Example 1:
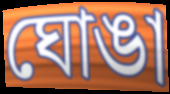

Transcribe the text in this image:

ঘোঙা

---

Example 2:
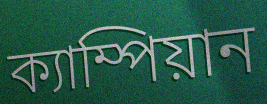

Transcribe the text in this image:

ক্যাম্পিয়ান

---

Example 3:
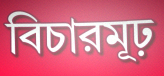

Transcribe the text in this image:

বিচারমূঢ়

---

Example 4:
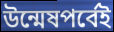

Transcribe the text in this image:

উন্মেষপর্বেই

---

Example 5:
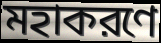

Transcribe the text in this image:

মহাকরণে